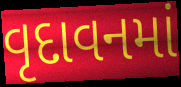
વૃદાવનમાં